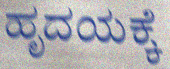
ಹೃದಯಕ್ಕೆ